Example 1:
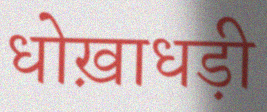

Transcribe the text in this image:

धोख़ाधड़ी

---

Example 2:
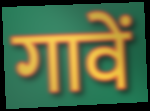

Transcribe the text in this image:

गावें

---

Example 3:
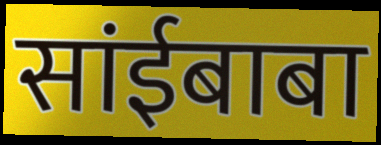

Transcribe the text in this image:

सांईबाबा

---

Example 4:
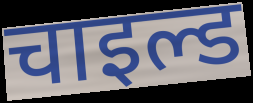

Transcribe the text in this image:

चाइल्ड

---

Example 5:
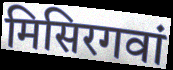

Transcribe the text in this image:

मिसिरगवां